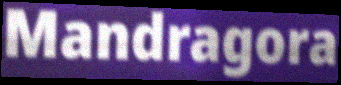
Mandragora